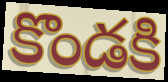
కొండకి